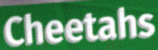
Cheetahs